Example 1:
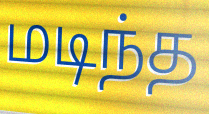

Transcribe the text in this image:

மடிந்த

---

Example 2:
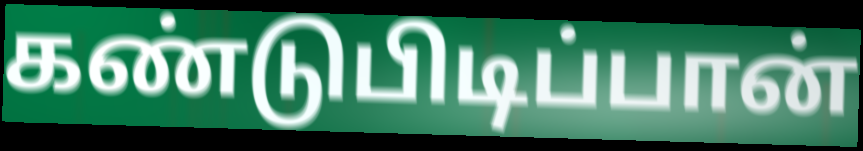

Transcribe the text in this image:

கண்டுபிடிப்பான்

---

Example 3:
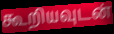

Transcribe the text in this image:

கூறியவுடன்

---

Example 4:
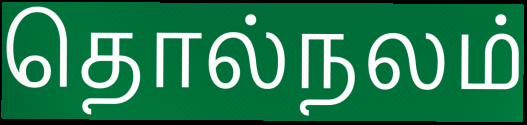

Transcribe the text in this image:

தொல்நலம்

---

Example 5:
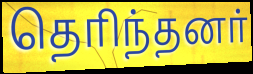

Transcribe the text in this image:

தெரிந்தனர்